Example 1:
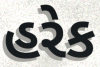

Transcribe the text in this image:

હરેક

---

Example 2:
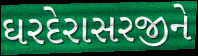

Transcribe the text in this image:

ઘરદેરાસરજીને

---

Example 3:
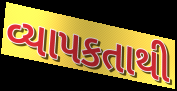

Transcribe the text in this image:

વ્યાપકતાથી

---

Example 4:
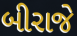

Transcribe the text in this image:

બીરાજે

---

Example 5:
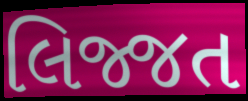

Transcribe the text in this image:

લિજ્જત